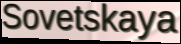
Sovetskaya